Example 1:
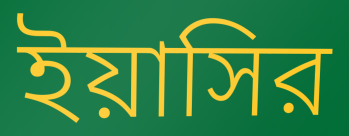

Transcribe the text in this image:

ইয়াসির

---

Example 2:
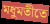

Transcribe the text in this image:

মধুমতীতে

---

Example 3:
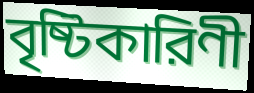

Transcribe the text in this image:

বৃষ্টিকারিণী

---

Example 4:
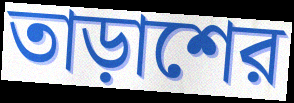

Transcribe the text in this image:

তাড়াশের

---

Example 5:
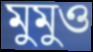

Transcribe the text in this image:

মুমুও